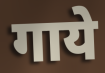
गाये